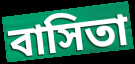
বাসিতা